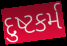
દુષ્ટકર્મ